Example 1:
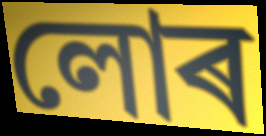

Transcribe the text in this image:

লোৰ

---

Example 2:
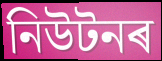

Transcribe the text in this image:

নিউটনৰ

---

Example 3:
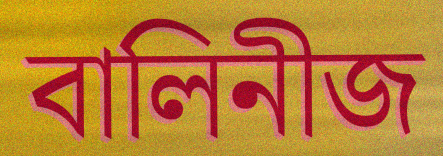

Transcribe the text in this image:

বালিনীজ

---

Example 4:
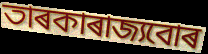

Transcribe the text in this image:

তাৰকাৰাজ্যবোৰ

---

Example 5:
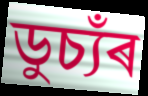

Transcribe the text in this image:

ডুচ্যঁৰ